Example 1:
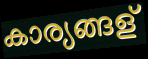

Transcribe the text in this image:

കാര്യങ്ങള്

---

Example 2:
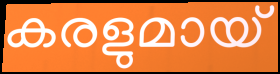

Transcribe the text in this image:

കരളുമായ്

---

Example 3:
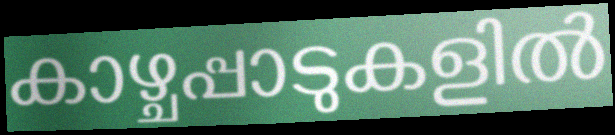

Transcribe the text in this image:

കാഴ്ചപ്പാടുകളിൽ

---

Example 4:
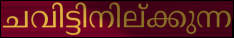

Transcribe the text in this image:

ചവിട്ടിനില്ക്കുന്ന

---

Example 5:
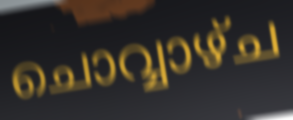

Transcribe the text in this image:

ചൊവ്വാഴ്‌ച